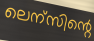
ലെന്സിന്റെ